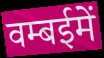
वम्बईमें